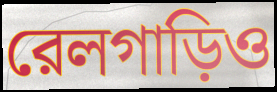
রেলগাড়িও